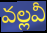
వల్లవీ